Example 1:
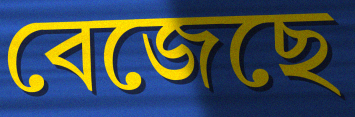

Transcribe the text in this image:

বেজেছে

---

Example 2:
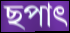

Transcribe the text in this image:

ছপাৎ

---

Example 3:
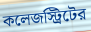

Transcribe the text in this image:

কলেজস্ট্রিটের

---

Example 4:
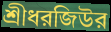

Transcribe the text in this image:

শ্রীধরজিউর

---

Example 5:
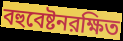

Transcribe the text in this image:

বহুবেষ্টনরক্ষিত